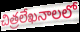
చిత్రలేఖనాలలో